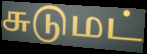
சுடுமட்